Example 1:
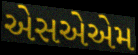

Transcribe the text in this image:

એસએએમ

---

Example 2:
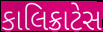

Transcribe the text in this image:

કાલિક્રાટેસ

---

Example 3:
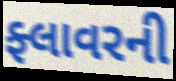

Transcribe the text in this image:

ફ્લાવરની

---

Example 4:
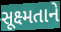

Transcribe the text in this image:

સૂક્ષ્મતાને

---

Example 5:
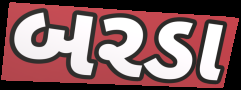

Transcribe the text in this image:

બરડા